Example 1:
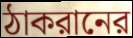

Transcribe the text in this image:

ঠাকরানের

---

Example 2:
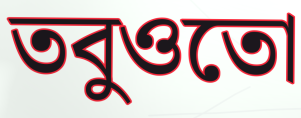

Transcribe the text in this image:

তবুওতো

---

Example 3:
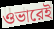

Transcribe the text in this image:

ওভারেই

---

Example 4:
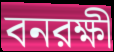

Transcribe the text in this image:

বনরক্ষী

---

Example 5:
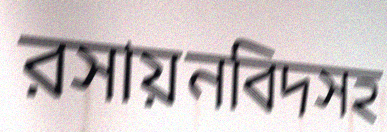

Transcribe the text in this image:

রসায়নবিদসহ